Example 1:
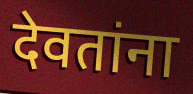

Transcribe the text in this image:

देवतांना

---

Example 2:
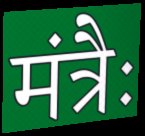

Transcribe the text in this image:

मंत्रैः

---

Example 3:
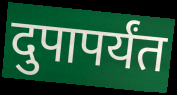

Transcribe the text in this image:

दुपापर्यंत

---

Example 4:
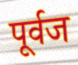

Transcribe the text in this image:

पूर्वज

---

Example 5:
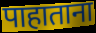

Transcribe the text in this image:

पाहाताना